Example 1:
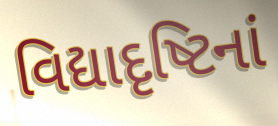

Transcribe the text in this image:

વિદ્યાદૃષ્ટિનાં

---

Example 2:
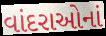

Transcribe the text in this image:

વાંદરાઓનાં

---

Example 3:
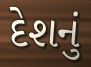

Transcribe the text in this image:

દેશનું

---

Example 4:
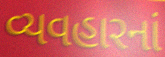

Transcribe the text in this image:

વ્યવહારનાં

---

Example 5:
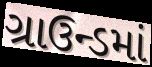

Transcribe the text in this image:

ગ્રાઉન્ડમાં